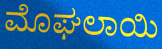
ಮೊಘಲಾಯಿ